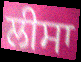
ਲੀਸਾ